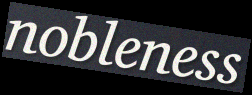
nobleness